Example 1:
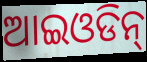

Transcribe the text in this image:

ଆଇଓଡିନ୍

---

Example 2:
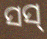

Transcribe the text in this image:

ସସ୍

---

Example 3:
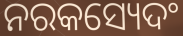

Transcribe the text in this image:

ନରକସ୍ୟେଦଂ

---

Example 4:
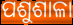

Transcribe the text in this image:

ପଶୁଶାଳା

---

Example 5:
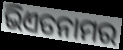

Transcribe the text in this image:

ଭିଏତନାମର